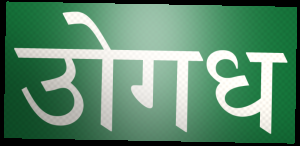
उोगध